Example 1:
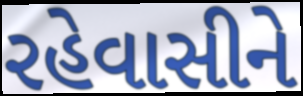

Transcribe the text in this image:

રહેવાસીને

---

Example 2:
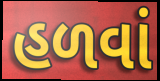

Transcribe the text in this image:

હળવાં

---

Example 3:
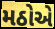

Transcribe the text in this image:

મઠોએ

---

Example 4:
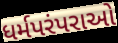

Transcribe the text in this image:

ધર્મપરંપરાઓ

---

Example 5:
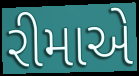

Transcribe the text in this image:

રીમાએ